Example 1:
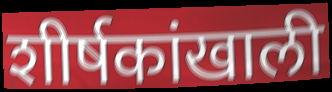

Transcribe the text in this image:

शीर्षकांखाली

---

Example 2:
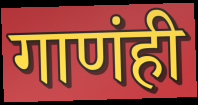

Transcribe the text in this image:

गाणंही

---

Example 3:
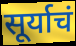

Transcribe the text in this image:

सूर्याचं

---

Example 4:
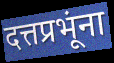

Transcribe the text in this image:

दत्तप्रभूंना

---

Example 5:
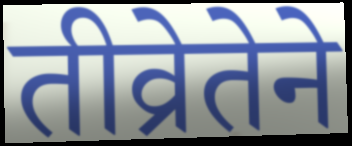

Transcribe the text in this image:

तीव्रेतेने